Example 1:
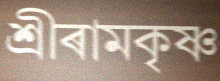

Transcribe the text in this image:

শ্ৰীৰামকৃষ্ণ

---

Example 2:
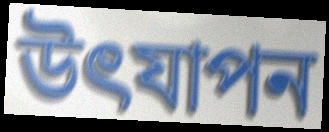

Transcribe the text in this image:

উৎযাপন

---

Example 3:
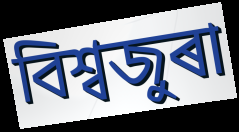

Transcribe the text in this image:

বিশ্বজুৰা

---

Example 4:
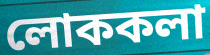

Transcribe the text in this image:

লোককলা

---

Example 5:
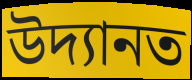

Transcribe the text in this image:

উদ্যানত